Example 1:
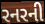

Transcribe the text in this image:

રનરની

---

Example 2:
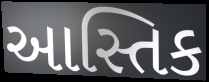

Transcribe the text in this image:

આસ્તિક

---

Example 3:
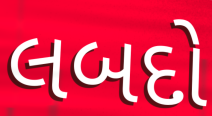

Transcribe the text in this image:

લબદો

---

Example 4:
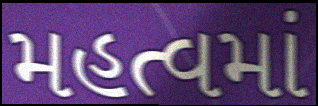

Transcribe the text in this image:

મહત્વમાં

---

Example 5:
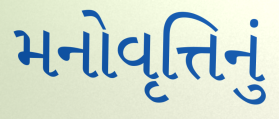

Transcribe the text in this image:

મનોવૃત્તિનું